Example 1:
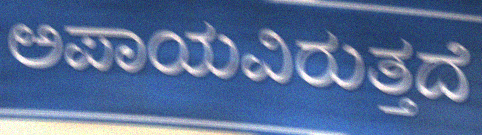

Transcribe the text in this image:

ಅಪಾಯವಿರುತ್ತದೆ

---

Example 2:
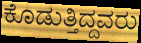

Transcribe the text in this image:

ಕೊಡುತ್ತಿದ್ದವರು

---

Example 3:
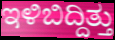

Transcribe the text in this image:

ಇಳಿಬಿದ್ದಿತ್ತು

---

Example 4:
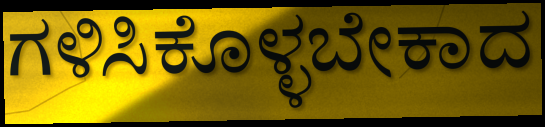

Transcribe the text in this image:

ಗಳಿಸಿಕೊಳ್ಳಬೇಕಾದ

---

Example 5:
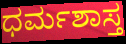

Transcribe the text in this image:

ಧರ್ಮಶಾಸ್ತ